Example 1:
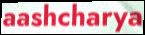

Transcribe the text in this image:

aashcharya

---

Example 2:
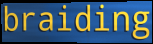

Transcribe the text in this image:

braiding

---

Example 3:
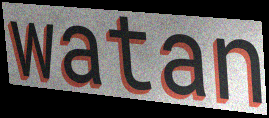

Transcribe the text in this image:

watan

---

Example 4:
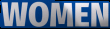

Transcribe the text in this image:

WOMEN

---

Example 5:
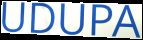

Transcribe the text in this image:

UDUPA